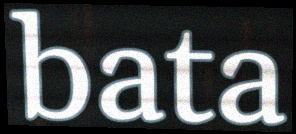
bata